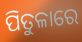
ପିତୁଳାରେ